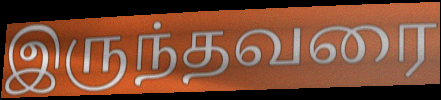
இருந்தவரை